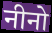
नीनो